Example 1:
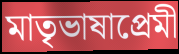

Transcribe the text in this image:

মাতৃভাষাপ্রেমী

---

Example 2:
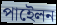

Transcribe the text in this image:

পাইেলন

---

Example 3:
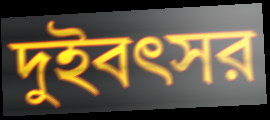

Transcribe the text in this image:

দুইবৎসর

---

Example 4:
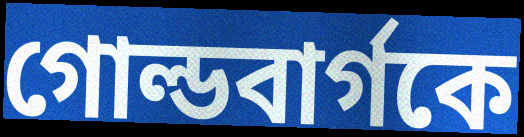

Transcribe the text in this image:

গোল্ডবার্গকে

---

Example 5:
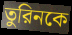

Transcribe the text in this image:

তুরিনকে